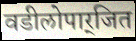
वडीलोपार्जित